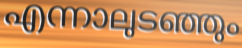
എന്നാലുടഞ്ഞും